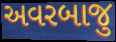
અવરબાજુ